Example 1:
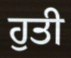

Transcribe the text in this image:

ਹੁਤੀ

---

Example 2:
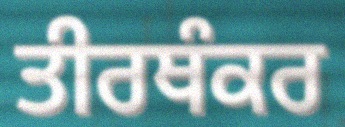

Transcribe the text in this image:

ਤੀਰਥੰਕਰ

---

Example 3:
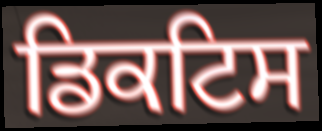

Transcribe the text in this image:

ਡਿਕਟਿਸ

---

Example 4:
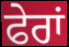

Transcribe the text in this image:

ਫੇਰਾਂ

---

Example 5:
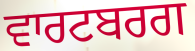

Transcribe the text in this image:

ਵਾਰਟਬਰਗ